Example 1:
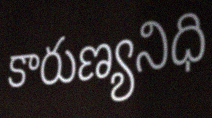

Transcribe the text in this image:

కారుణ్యనిధి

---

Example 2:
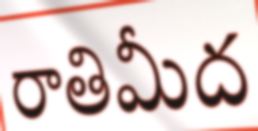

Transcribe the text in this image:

రాతిమీద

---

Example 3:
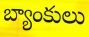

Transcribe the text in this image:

బ్యాంకులు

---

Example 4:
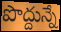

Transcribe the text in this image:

పొద్దున్నే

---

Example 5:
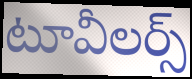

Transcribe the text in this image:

టూవీలర్స్